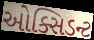
ઓક્સિડન્ટ